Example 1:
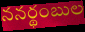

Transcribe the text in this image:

ననర్థంబుల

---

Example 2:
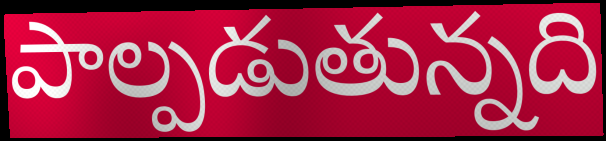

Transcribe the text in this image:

పాల్పడుతున్నది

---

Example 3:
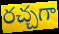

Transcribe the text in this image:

రచ్చగా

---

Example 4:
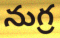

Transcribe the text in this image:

నుగ్ర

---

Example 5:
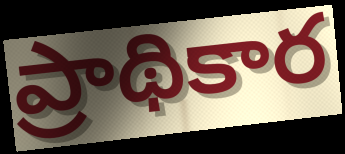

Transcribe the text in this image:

ప్రాథికార